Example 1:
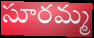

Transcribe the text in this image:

సూరమ్మ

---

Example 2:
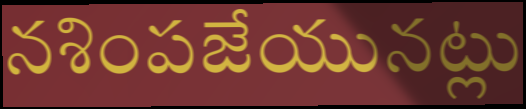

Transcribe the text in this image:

నశింపజేయునట్లు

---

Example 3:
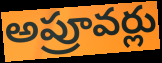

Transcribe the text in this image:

అప్రూవర్లు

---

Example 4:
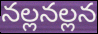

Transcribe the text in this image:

నల్లనల్లన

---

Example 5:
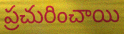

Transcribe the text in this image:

ప్రచురించాయి